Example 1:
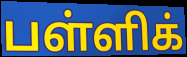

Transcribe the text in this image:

பள்ளிக்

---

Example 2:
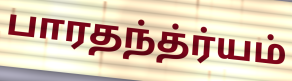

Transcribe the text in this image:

பாரதந்த்ர்யம்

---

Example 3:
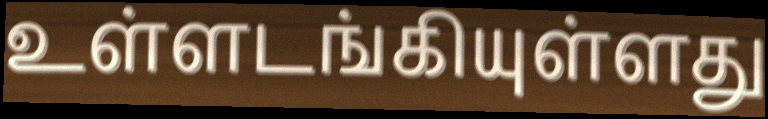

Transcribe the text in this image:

உள்ளடங்கியுள்ளது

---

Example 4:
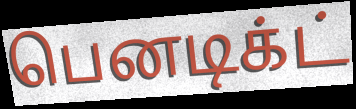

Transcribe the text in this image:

பெனடிக்ட்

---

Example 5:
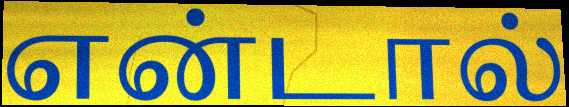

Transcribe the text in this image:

என்டால்